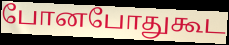
போனபோதுகூட